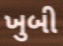
ખુબી